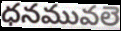
ధనమువలె